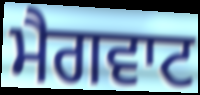
ਮੈਗਵਾਟ